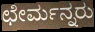
ಛೇರ್ಮನ್ನರು